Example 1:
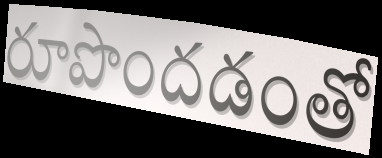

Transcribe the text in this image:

రూపొందడంతో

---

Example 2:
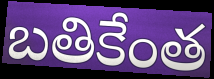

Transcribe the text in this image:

బతికేంత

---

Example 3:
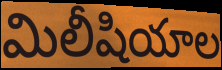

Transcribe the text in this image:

మిలీషియాల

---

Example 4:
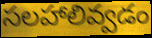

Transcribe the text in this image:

సలహాలివ్వడం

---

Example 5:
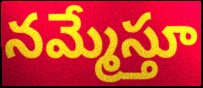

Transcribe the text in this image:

నమ్మేస్తూ